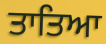
ਤਾਤਿਆ